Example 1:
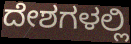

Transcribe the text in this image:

ದೇಶಗಳಲ್ಲಿ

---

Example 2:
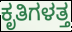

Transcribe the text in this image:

ಕೃತಿಗಳತ್ತ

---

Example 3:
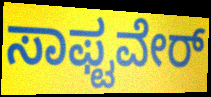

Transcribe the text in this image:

ಸಾಫ್ಟವೇರ್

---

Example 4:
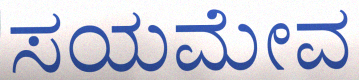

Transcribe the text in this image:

ಸಯಮೇವ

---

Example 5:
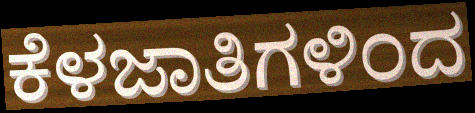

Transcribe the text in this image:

ಕೆಳಜಾತಿಗಳಿಂದ